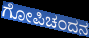
ಗೋಪಿಚಂದನ